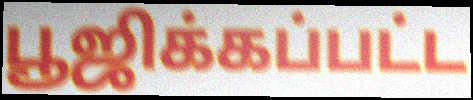
பூஜிக்கப்பட்ட